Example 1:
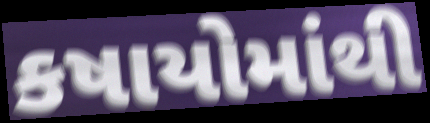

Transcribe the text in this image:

કષાયોમાંથી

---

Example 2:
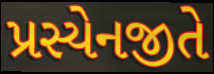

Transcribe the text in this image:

પ્રસ્યેનજીતે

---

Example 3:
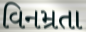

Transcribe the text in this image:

વિનમ્રતા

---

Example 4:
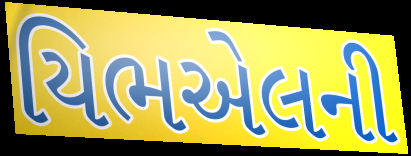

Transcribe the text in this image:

યિભએલની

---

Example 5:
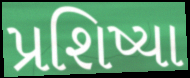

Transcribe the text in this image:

પ્રશિષ્યા